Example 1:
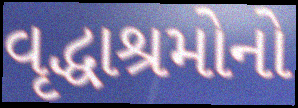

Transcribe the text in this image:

વૃદ્ધાશ્રમોનો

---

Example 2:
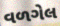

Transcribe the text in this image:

વળગેલ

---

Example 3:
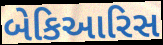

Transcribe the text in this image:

બેકિઆરિસ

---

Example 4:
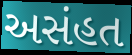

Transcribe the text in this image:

અસંહત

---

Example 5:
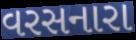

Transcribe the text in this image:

વરસનારા